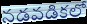
నడవడికలో